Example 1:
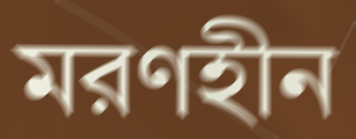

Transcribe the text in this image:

মরণহীন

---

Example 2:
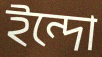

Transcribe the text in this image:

ইন্দো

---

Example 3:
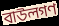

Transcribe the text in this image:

বাউলগণ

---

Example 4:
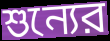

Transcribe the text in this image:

শুন্যের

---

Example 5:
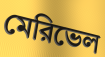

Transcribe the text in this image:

মেরিভেল